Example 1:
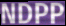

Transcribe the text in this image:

NDPP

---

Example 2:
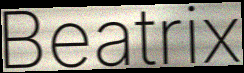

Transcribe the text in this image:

Beatrix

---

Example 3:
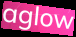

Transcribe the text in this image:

aglow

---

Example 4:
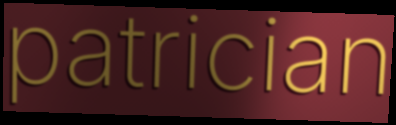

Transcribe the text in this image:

patrician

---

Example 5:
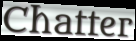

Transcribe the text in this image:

Chatter